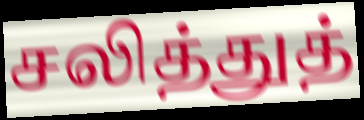
சலித்துத்